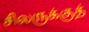
சிலருக்குத்